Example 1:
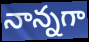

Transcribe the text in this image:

నాన్నగా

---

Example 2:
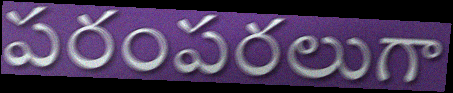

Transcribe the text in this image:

పరంపరలుగా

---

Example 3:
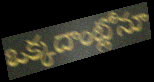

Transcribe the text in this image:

ఒక్కదాంట్లోనూ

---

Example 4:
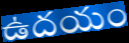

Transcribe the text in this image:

ఉదయం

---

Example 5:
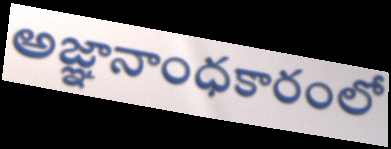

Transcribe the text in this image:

అజ్ఞానాంధకారంలో